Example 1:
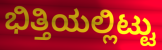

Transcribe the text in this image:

ಭಿತ್ತಿಯಲ್ಲಿಟ್ಟು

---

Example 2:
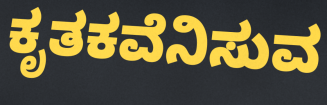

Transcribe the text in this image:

ಕೃತಕವೆನಿಸುವ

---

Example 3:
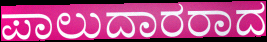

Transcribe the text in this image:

ಪಾಲುದಾರರಾದ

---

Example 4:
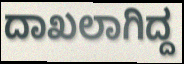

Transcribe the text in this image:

ದಾಖಲಾಗಿದ್ದ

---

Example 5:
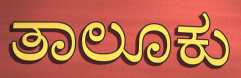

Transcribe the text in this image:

ತಾಲೂಕು